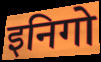
इनिगो